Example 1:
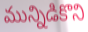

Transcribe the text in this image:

మున్నిడికొని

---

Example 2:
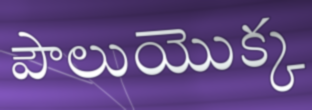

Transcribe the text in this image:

పౌలుయొక్క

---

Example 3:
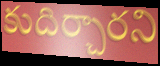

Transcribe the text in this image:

కుదిర్చారని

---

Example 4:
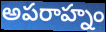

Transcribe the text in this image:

అపరాహ్నం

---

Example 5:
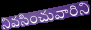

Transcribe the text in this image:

నివసించువారిని